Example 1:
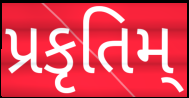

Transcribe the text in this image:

પ્રકૃતિમ્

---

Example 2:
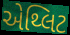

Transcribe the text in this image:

એથ્લિટ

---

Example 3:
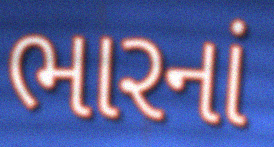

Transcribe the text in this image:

ભારનાં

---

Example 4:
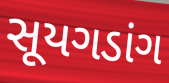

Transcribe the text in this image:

સૂયગડાંગ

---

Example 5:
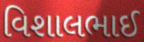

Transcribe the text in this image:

વિશાલભાઈ